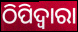
ଠିପିଦ୍ଵାରା